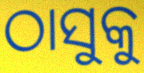
ଠାସୁକୁ